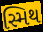
સ્મિથ